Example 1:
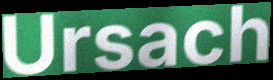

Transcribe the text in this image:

Ursach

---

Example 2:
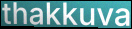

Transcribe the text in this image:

thakkuva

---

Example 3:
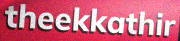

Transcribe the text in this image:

theekkathir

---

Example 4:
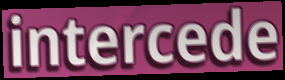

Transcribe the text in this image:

intercede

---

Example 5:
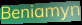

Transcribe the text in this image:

Beniamyn